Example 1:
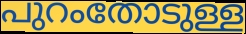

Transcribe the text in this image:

പുറംതോടുള്ള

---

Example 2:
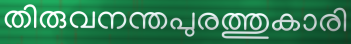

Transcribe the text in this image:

തിരുവനന്തപുരത്തുകാരി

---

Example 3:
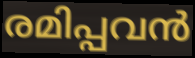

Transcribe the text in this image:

രമിപ്പവൻ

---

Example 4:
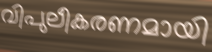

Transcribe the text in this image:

വിപുലീകരണമായി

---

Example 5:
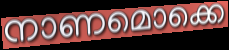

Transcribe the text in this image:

നാണമൊക്കെ